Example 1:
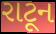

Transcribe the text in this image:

રાટૂન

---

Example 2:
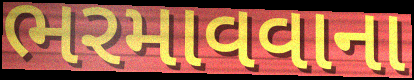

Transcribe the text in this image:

ભરમાવવાના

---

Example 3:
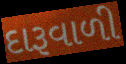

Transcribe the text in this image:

દારૂવાળી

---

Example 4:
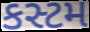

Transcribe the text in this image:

કસ્ટમ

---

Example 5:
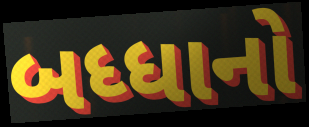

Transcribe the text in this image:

બધ્ધાનો